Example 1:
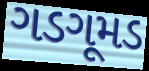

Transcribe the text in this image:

ગડગૂમડ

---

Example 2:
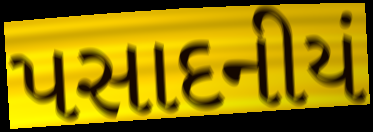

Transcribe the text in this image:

પસાદનીયં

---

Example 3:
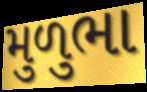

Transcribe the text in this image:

મુળુભા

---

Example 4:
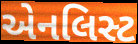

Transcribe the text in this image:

એનલિસ્ટ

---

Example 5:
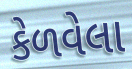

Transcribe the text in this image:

કેળવેલા